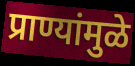
प्राण्यांमुळे